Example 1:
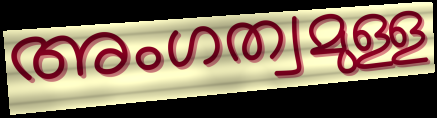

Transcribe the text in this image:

അംഗത്വമുള്ള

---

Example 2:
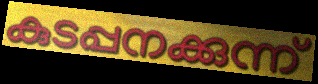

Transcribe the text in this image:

കുടപ്പനക്കുന്ന്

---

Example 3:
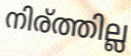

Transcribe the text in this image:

നിര്ത്തില്ല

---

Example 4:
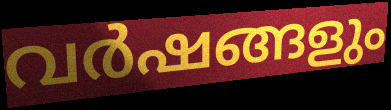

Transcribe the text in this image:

വർഷങ്ങളും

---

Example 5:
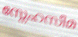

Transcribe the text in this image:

സ്നേഹസീമ